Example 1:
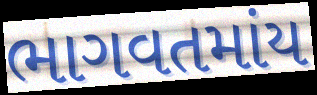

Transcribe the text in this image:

ભાગવતમાંય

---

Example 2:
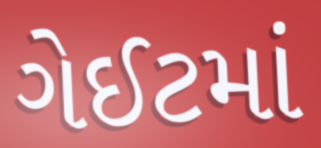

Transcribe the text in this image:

ગેઈટમાં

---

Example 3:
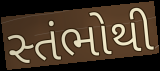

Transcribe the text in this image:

સ્તંભોથી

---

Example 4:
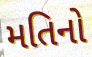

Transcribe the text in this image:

મતિનો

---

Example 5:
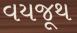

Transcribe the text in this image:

વયજૂથ